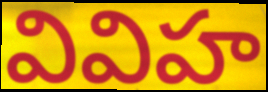
వివిహ